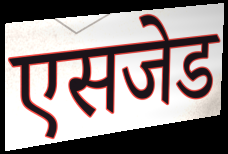
एसजेड